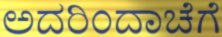
ಅದರಿಂದಾಚೆಗೆ